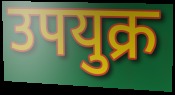
उपयुक्र